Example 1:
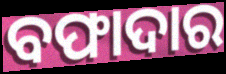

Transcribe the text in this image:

ବଫାଦାର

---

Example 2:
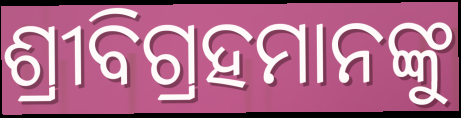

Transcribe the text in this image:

ଶ୍ରୀବିଗ୍ରହମାନଙ୍କୁ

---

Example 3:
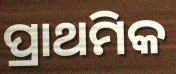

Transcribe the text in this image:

ପ୍ରାଥମିକ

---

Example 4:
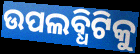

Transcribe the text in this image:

ଉପଲବ୍ଧିଟିକୁ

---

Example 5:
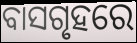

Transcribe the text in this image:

ବାସଗୃହରେ